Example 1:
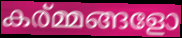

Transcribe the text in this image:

കര്മ്മങ്ങളോ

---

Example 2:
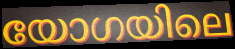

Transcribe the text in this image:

യോഗയിലെ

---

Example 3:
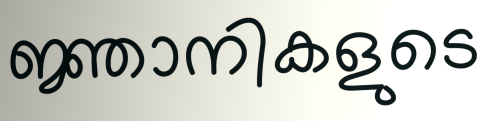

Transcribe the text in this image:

ജ്ഞാനികളുടെ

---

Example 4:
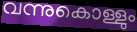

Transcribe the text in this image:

വന്നുകൊള്ളും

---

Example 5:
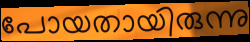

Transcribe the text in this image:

പോയതായിരുന്നു